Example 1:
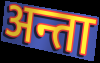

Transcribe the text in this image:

अन्ता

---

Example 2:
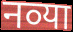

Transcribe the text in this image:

नव्‍या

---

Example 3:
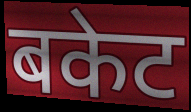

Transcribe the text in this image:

बकेट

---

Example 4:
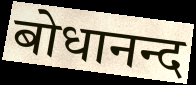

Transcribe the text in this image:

बोधानन्द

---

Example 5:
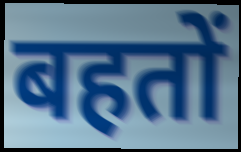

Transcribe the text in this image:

बहतों